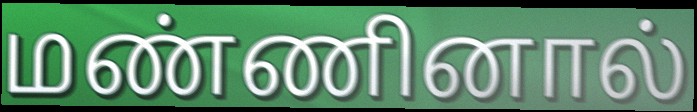
மண்ணினால்